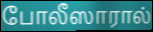
போலீஸாரால்